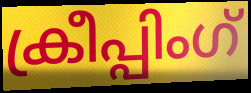
ക്രീപ്പിംഗ്